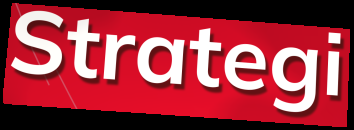
Strategi